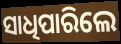
ସାଧିପାରିଲେ